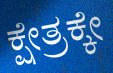
ಕ್ಷೇತ್ರಕ್ಕೇ